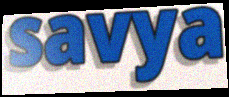
savya